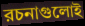
রচনাগুলোই